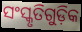
ସଂସ୍କୃତିଗୁଡ଼ିକ